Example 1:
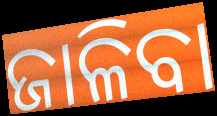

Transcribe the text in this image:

ଜାଳିବା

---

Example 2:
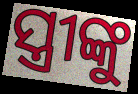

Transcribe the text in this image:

ସ୍ତ୍ରୀଙ୍କୁ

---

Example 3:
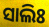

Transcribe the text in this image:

ସାଲିଃ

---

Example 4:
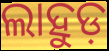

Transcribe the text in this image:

ଲାହୁଡ଼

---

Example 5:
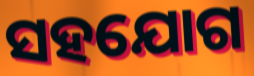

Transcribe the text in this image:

ସହଯୋଗ